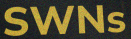
SWNs